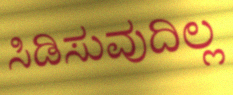
ಸಿಡಿಸುವುದಿಲ್ಲ